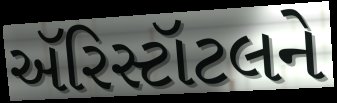
ઍરિસ્ટૉટલને